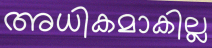
അധികമാകില്ല